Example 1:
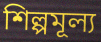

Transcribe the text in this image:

শিল্পমূল্য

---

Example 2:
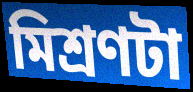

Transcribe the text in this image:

মিশ্রণটা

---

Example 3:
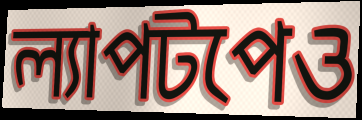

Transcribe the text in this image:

ল্যাপটপেও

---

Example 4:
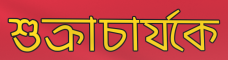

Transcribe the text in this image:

শুক্রাচার্যকে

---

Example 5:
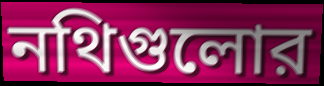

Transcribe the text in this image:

নথিগুলোর